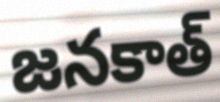
జనకాత్